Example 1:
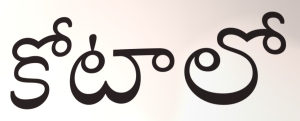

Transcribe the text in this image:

కోటాలో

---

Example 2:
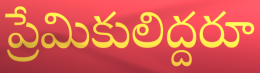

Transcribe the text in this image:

ప్రేమికులిద్దరూ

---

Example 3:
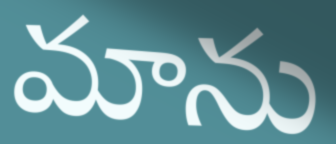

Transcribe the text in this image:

మాను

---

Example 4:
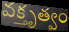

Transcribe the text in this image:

వక్తృత్వం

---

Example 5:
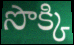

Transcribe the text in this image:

సొక్కి